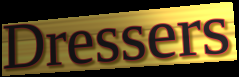
Dressers